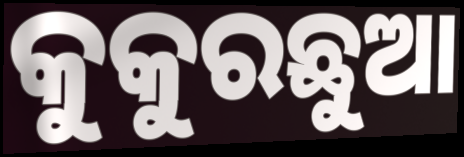
କୁକୁରଛୁଆ